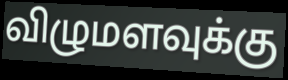
விழுமளவுக்கு